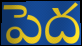
పెద